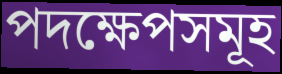
পদক্ষেপসমূহ